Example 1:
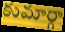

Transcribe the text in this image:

కుమార్గా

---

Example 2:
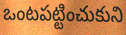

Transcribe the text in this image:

ఒంటపట్టించుకుని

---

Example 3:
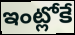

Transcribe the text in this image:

ఇంట్లోకే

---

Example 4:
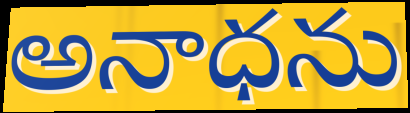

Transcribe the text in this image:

అనాధను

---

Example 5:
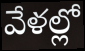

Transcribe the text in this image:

వేళల్లో